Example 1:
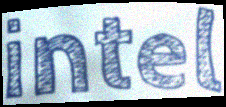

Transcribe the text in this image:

intel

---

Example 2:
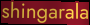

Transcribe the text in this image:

shingarala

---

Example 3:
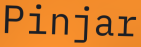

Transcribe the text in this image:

Pinjar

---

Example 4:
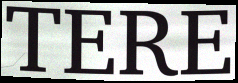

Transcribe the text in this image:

TERE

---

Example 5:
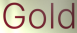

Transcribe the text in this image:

Gold